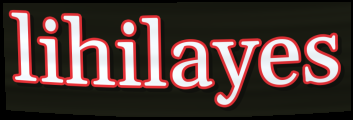
lihilayes